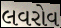
લવરોવ